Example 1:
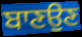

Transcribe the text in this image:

ਬਾਣਉਣ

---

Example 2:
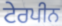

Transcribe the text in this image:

ਟੇਰਪੀਨ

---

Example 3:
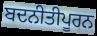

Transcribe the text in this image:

ਬਦਨੀਤੀਪੂਰਨ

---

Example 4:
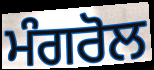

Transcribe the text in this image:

ਮੰਗਰੋਲ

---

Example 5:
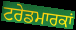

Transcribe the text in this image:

ਟਰੇਡਮਾਰਕਾਂ